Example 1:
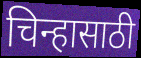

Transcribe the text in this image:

चिन्हासाठी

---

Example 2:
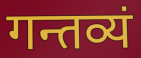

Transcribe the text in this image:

गन्तव्यं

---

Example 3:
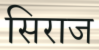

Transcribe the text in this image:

सिराज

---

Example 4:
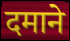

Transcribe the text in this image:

दमाने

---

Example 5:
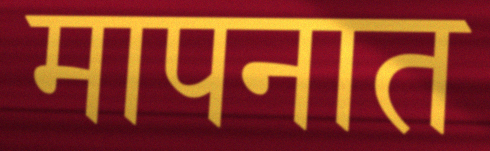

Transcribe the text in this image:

मापनात